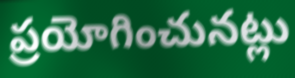
ప్రయోగించునట్లు